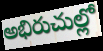
అభిరుచుల్లో